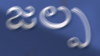
జల్ప